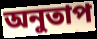
অনুতাপ